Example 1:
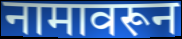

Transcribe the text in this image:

नामावरून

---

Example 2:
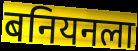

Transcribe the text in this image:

बनियनला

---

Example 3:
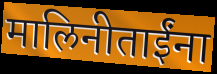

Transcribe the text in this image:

मालिनीताईंना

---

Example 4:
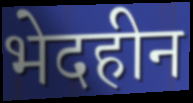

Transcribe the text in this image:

भेदहीन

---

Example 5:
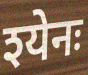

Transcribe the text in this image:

श्येनः